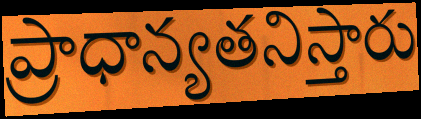
ప్రాధాన్యతనిస్తారు